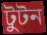
টুটন